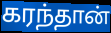
கரந்தான்